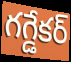
గగ్డేకర్